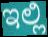
ಇಲ್ಲಿ